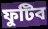
ফুটিব